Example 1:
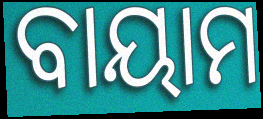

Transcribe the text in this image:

ବାୟାମ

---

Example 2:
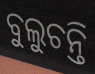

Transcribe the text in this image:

ବୁଲୁଚନ୍ତି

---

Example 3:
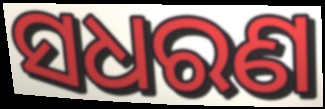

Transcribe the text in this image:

ସଧରଣ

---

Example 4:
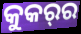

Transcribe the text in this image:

କୁକର୍‌ର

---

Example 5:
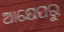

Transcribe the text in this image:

ଆକ୍ଷେପରୁ